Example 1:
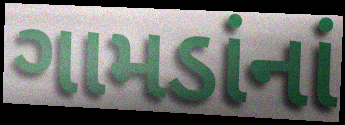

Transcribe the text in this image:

ગામડાંનાં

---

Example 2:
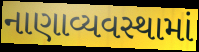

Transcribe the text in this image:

નાણાવ્યવસ્થામાં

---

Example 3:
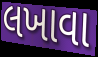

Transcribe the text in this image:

લખાવા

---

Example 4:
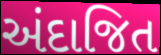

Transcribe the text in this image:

અંદાજિત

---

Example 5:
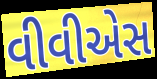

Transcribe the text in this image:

વીવીએસ